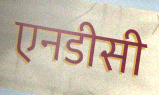
एनडीसी